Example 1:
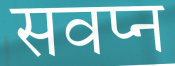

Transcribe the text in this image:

सवप्न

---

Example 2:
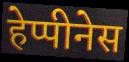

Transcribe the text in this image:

हेप्पीनेस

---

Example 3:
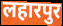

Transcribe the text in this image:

लहारपुर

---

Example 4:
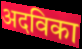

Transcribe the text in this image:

अदविका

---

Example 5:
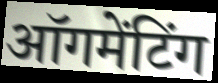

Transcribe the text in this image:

ऑगमेंटिंग